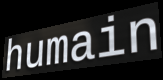
humain